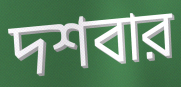
দশবার